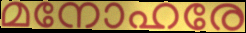
മനോഹരേ